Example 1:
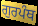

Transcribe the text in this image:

ਗੁਰਪੰਥ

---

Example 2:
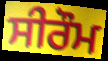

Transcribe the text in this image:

ਸੀਰੌਮ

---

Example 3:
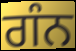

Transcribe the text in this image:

ਗੰਨ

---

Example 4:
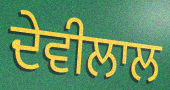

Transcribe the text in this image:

ਦੇਵੀਲਾਲ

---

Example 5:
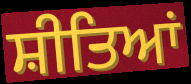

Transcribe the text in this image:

ਸ਼ੀਤਿਆਂ